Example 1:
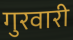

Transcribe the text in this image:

गुरवारी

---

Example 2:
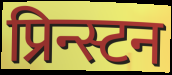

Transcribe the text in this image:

प्रिन्स्टन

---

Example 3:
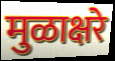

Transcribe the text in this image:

मुळाक्षरे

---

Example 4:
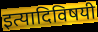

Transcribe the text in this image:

इत्यादिविषयी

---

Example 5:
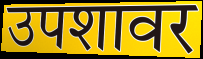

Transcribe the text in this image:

उपशावर